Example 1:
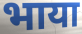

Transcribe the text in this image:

भाया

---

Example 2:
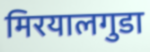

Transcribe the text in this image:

मिरयालगुडा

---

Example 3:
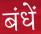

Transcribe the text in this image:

बंधें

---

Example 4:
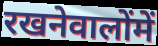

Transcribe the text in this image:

रखनेवालोंमें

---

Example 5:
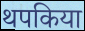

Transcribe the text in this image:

थपकिया